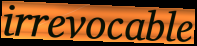
irrevocable